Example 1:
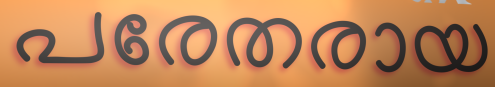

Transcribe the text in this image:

പരേതരായ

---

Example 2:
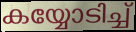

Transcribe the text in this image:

കയ്യോടിച്ച്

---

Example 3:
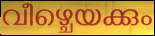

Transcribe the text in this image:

വീഴ്ചെയക്കും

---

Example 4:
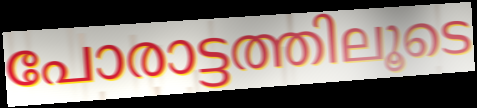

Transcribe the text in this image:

പോരാട്ടത്തിലൂടെ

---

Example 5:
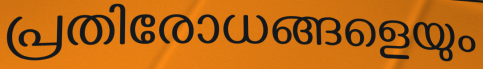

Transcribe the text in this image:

പ്രതിരോധങ്ങളെയും